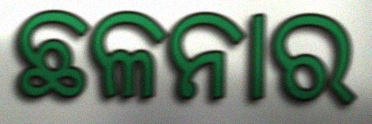
ଛଳନାର